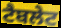
ਟੈਬਲੇਟ